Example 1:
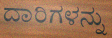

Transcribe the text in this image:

ದಾರಿಗಳನ್ನು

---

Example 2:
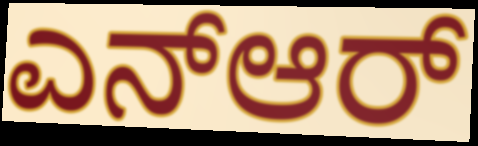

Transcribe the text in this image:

ಎನ್ಆರ್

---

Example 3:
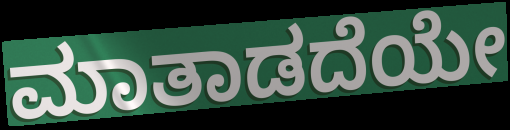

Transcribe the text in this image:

ಮಾತಾಡದೆಯೇ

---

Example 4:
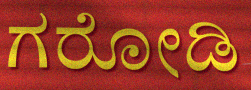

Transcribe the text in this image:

ಗರೋಡಿ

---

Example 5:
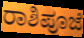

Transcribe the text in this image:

ರಾಶಿಪೂಜೆ